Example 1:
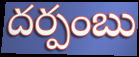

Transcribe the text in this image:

దర్పంబు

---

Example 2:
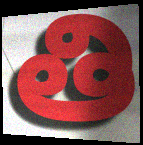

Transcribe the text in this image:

తి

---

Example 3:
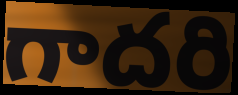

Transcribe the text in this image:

గాదరి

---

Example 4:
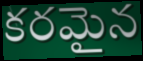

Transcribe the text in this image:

కరమైన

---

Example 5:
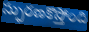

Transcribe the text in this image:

స్ఫురణకొస్తోంది